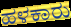
ಹಳಕಾರು